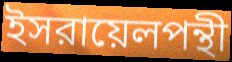
ইসরায়েলপন্থী